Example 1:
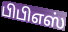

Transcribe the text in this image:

பிபிஎஸ்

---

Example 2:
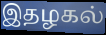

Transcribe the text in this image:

இதழகல்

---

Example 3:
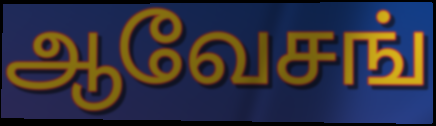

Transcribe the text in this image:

ஆவேசங்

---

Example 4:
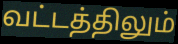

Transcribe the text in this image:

வட்டத்திலும்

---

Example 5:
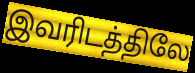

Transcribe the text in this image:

இவரிடத்திலே